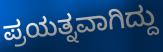
ಪ್ರಯತ್ನವಾಗಿದ್ದು